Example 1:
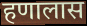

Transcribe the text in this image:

हणालास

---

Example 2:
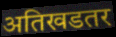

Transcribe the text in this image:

अतिखडतर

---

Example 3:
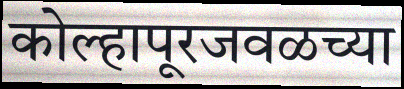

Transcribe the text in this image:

कोल्हापूरजवळच्या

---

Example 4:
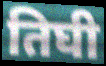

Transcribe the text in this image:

तिघी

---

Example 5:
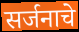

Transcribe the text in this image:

सर्जनाचे